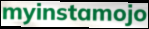
myinstamojo